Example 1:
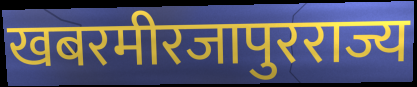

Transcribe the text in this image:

खबरमीरजापुरराज्य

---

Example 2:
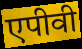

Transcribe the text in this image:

एपीवी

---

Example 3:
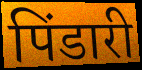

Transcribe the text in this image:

पिंडारी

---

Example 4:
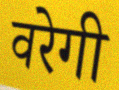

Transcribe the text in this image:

वरेगी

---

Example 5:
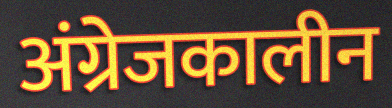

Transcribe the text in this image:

अंग्रेजकालीन